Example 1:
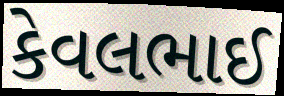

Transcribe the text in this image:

કેવલભાઈ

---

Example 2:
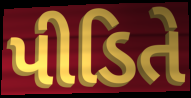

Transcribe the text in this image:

પીડિતે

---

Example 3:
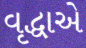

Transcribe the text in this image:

વૃદ્ધાએ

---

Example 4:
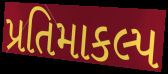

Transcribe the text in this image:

પ્રતિમાકલ્પ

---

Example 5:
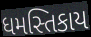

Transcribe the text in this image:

ધમસ્તિકાય